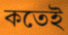
কতেই